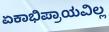
ಏಕಾಭಿಪ್ರಾಯವಿಲ್ಲ